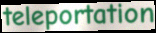
teleportation